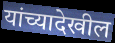
यांच्यादेखील